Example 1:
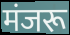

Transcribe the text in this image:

मंजरू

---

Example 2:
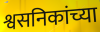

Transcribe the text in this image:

श्वसनिकांच्या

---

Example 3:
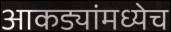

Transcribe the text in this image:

आकड्यांमध्येच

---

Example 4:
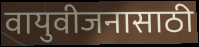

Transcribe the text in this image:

वायुवीजनासाठी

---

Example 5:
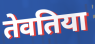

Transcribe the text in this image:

तेवतिया